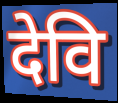
देवि